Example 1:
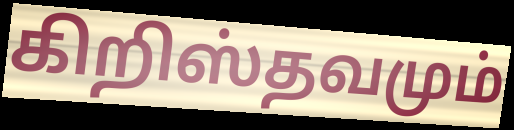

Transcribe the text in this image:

கிறிஸ்தவமும்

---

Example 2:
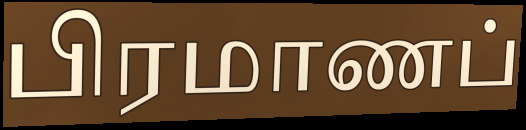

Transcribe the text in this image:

பிரமாணப்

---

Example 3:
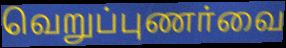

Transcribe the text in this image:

வெறுப்புணர்வை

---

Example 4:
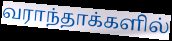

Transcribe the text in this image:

வராந்தாக்களில்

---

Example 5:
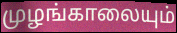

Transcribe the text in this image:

முழங்காலையும்